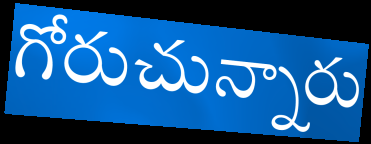
గోరుచున్నారు